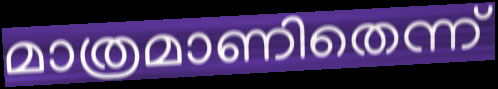
മാത്രമാണിതെന്ന്